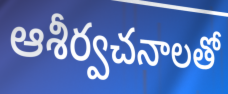
ఆశీర్వచనాలతో